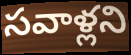
సవాళ్లని